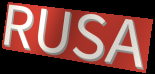
RUSA